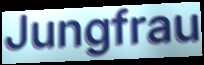
Jungfrau